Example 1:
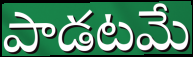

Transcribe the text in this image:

పాడటమే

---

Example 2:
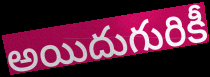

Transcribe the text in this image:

అయిదుగురికీ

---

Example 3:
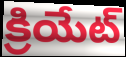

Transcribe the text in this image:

క్రియేట్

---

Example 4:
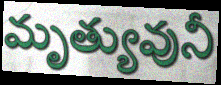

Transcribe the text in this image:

మృత్యువునీ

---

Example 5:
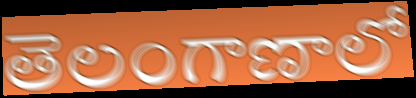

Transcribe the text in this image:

తెలంగాణాలో